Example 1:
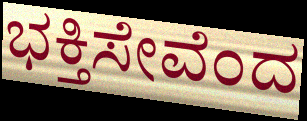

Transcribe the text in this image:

ಭಕ್ತಿಸೇವೆಂದ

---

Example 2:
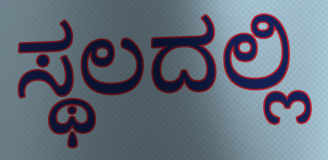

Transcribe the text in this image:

ಸ್ಥಲದಲ್ಲಿ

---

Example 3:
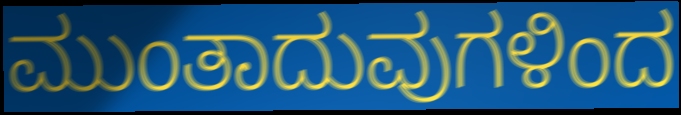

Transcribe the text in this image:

ಮುಂತಾದುವುಗಳಿಂದ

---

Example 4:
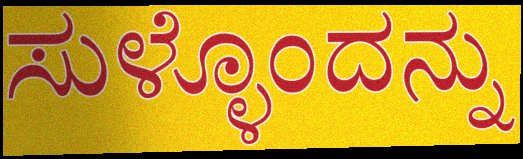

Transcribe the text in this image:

ಸುಳ್ಳೊಂದನ್ನು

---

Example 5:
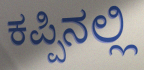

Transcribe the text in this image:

ಕಪ್ಪಿನಲ್ಲಿ